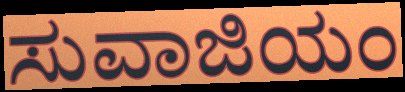
ಸುವಾಜಿಯಂ